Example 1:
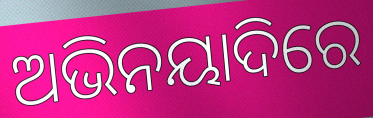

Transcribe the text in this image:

ଅଭିନୟାଦିରେ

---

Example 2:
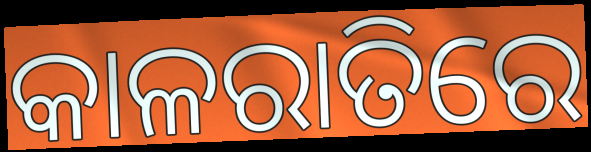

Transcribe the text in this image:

କାଳରାତିରେ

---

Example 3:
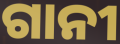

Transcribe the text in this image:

ଗାନୀ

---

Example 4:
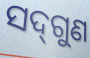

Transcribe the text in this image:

ସଦ୍‌ଗୁଣ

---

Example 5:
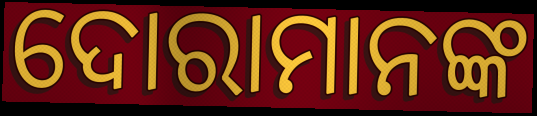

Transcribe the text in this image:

ଦୋରାମାନଙ୍କ